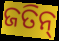
ଜତିନ୍